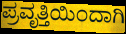
ಪ್ರವೃತ್ತಿಯಿಂದಾಗಿ